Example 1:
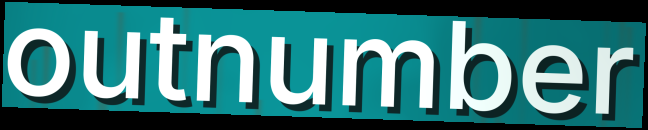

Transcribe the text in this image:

outnumber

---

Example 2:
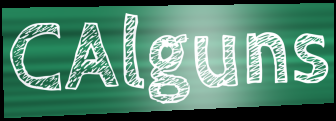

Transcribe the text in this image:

CAlguns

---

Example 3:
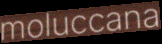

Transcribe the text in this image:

moluccana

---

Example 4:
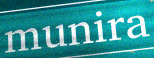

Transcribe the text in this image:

munira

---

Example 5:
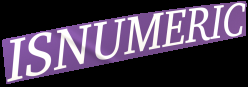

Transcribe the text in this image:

ISNUMERIC